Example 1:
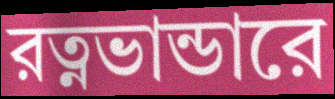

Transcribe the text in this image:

রত্নভান্ডারে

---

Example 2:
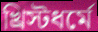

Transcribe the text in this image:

খ্রিস্টধর্মে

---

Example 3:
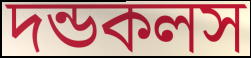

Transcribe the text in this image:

দন্ডকলস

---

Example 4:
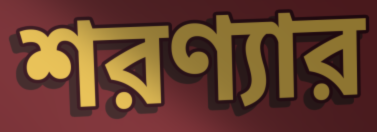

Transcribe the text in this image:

শরণ্যার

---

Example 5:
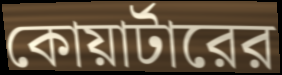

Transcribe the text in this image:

কোয়ার্টারের